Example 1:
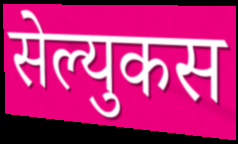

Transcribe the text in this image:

सेल्युकस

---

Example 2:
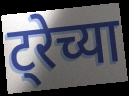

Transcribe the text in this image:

ट्रेच्या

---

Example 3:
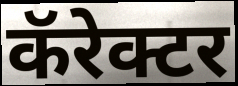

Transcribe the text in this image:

कॅरेक्टर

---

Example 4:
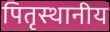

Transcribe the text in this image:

पितृस्थानीय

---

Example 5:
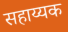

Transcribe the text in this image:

सहाय्यक